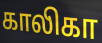
காலிகா